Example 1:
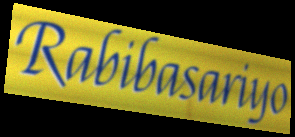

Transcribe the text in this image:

Rabibasariyo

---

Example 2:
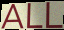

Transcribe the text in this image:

ALL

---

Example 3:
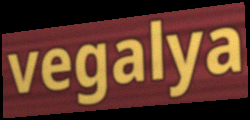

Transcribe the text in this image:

vegalya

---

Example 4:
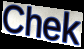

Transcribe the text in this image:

Chek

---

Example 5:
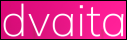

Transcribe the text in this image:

dvaita